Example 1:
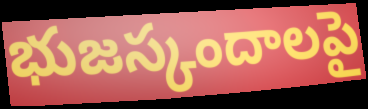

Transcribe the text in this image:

భుజస్కందాలపై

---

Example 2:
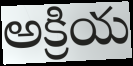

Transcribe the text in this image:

అక్రియ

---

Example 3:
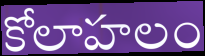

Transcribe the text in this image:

కోలాహలం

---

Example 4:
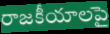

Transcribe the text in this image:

రాజకీయాలపై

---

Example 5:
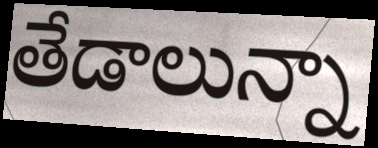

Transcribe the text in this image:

తేడాలున్నా